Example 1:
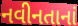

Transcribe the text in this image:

નવીનતાનાં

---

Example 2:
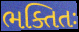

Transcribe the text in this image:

ભક્તિતઃ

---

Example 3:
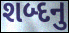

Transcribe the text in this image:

શબ્દનુ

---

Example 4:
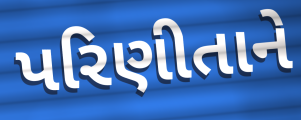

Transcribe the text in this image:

પરિણીતાને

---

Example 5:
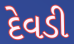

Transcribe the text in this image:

દેવડી